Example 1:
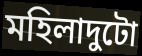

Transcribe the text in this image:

মহিলাদুটো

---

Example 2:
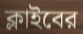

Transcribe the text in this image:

ক্লাইবের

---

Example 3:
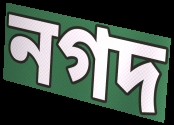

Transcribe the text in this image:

নগদ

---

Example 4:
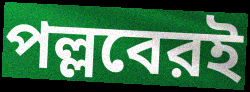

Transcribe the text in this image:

পল্লবেরই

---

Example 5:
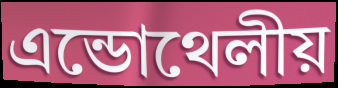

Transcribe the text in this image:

এন্ডোথেলীয়